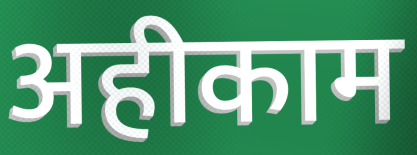
अहीकाम